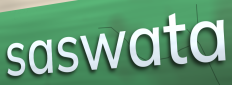
saswata